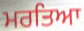
ਮਰਤਿਆ